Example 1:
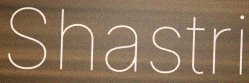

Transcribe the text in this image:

Shastri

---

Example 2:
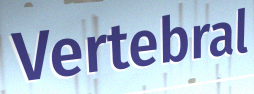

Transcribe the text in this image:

Vertebral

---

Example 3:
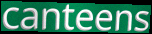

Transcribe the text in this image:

canteens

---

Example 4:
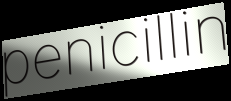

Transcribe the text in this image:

penicillin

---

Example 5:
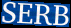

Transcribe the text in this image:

SERB